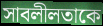
সাবলীলতাকে